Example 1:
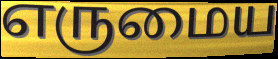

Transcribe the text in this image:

எருமைய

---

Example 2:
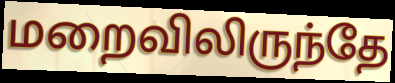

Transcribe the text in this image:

மறைவிலிருந்தே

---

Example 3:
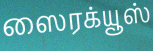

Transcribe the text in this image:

ஸைரக்யூஸ்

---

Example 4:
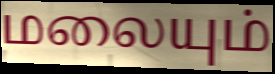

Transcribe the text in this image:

மலையும்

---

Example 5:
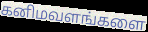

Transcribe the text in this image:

கனிமவளங்களை